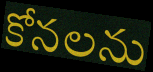
కోనలను